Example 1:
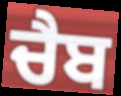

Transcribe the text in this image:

ਚੈਬ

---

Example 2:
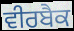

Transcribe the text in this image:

ਵੀਰਬੈਕ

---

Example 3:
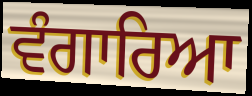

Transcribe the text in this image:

ਵੰਗਾਰਿਆ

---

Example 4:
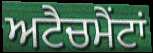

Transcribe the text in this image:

ਅਟੈਚਮੈਂਟਾਂ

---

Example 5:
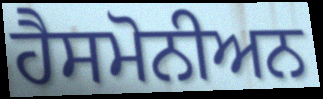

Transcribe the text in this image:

ਹੈਸਮੋਨੀਅਨ